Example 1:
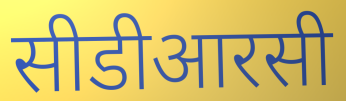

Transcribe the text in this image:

सीडीआरसी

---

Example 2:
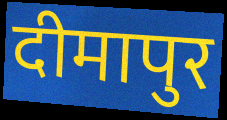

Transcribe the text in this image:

दीमापुर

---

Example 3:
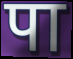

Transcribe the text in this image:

पा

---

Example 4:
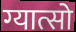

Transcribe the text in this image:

ग्यात्सो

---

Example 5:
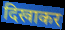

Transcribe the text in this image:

दिखाकर